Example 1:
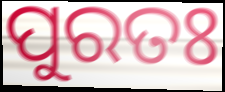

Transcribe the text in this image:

ପୁରତଃ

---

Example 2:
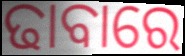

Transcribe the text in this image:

ଢାବାରେ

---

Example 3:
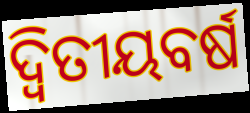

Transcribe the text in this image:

ଦ୍ୱିତୀୟବର୍ଷ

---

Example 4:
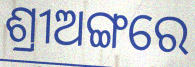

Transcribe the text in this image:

ଶ୍ରୀଅଙ୍ଗରେ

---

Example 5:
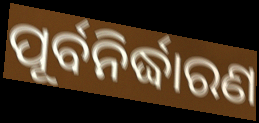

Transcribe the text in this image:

ପୂର୍ବନିର୍ଦ୍ଧାରଣ